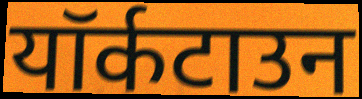
यॉर्कटाउन